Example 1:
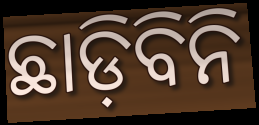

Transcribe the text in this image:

ଛାଡ଼ିବିନି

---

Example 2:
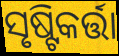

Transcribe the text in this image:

ସୃଷ୍ଟିକର୍ତ୍ତା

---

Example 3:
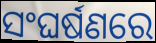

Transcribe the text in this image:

ସଂଘର୍ଷଣରେ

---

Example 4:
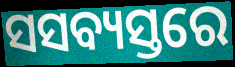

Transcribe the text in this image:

ସସବ୍ୟସ୍ତରେ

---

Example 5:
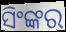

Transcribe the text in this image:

ସିଂଙ୍କର